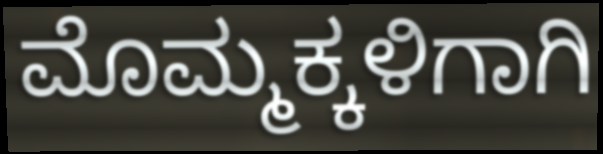
ಮೊಮ್ಮಕ್ಕಳಿಗಾಗಿ